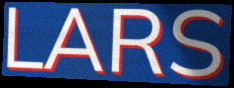
LARS